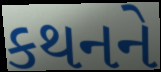
કથનને